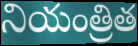
నియంత్రిత